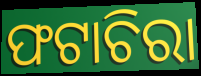
ଫଟାଚିରା